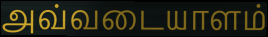
அவ்வடையாளம்